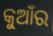
କୁଆଁର